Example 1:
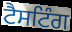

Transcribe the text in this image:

ਟੈਸਟਿੰਗ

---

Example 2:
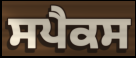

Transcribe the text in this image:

ਸਪੈਕਸ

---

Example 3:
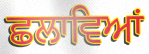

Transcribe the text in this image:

ਛਲਾਵਿਆਂ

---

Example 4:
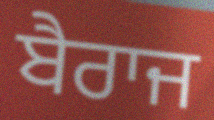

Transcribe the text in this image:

ਬੈਰਾਜ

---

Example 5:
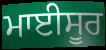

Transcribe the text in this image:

ਮਾਈਸੂਰ